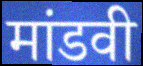
मांडवी